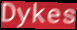
Dykes